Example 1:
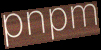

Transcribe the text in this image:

pnpm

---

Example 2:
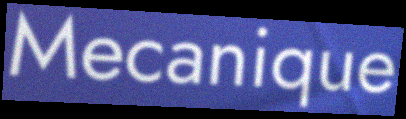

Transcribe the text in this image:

Mecanique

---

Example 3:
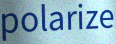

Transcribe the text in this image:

polarize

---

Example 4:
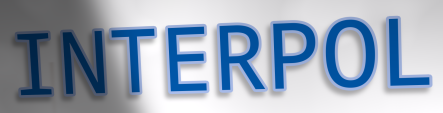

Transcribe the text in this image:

INTERPOL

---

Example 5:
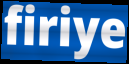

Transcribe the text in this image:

firiye